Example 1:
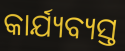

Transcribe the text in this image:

କାର୍ଯ୍ୟବ୍ୟସ୍ତ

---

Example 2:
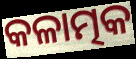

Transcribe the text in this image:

କଳାତ୍ମକ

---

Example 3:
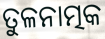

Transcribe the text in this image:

ତୁଳନାତ୍ମକ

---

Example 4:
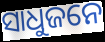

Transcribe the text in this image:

ସାଧୁଜନେ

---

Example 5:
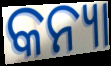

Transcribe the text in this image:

କନ୍ୟା